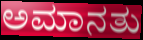
ಅಮಾನತು